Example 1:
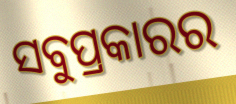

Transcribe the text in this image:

ସବୁପ୍ରକାରର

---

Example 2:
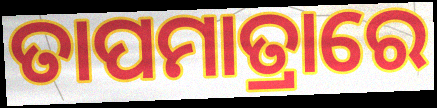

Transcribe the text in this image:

ତାପମାତ୍ରାରେ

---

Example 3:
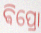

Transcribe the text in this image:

ଵିପ୍ରୋ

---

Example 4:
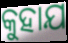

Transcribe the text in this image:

କୁହାଯ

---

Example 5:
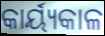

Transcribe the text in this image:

କାର୍ୟ୍ୟକାଳ